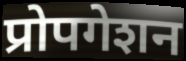
प्रोपगेशन